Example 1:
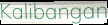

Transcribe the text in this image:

Kalibangan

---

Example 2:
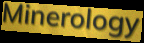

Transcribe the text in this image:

Minerology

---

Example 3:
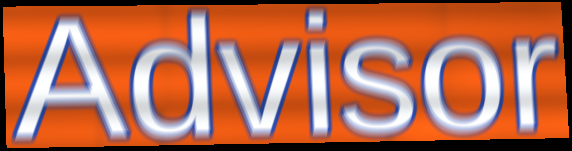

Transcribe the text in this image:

Advisor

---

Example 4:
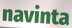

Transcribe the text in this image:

navinta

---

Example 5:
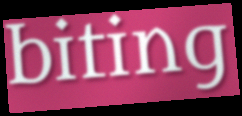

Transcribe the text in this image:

biting